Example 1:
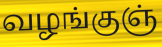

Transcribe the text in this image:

வழங்குஞ்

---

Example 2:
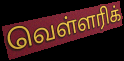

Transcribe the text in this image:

வெள்ளரிக்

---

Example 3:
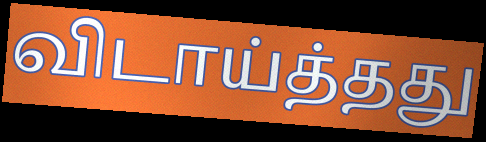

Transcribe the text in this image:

விடாய்த்தது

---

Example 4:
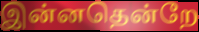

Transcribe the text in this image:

இன்னதென்றே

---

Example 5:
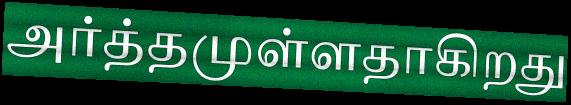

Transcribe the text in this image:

அர்த்தமுள்ளதாகிறது